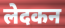
लेदकन